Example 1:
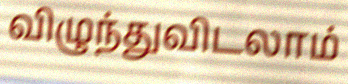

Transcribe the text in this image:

விழுந்துவிடலாம்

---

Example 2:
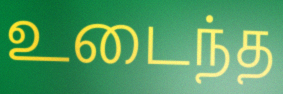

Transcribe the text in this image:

உடைந்த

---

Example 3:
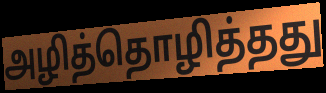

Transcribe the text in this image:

அழித்தொழித்தது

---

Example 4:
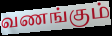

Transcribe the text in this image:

வணங்கும்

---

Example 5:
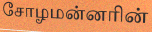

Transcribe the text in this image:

சோழமன்னரின்